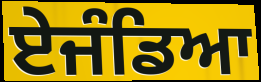
ਏਜੰਡਿਆ